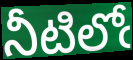
నీటిలోఁ